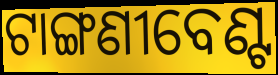
ଟାଙ୍ଗଣୀବେଣ୍ଟ